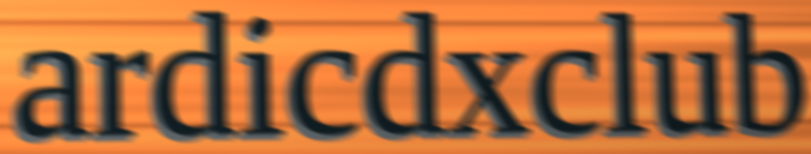
ardicdxclub